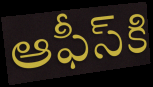
ఆఫీస్‌కి